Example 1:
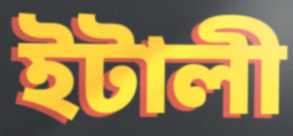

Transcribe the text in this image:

ইটালী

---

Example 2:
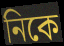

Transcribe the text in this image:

নিকে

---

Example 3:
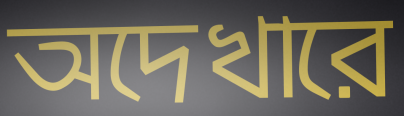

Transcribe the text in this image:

অদেখারে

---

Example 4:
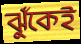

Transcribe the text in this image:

ঝুঁকেই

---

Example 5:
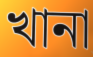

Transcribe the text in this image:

খানা